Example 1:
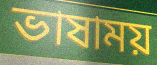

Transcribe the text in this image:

ভাষাময়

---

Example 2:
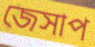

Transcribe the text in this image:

জেসাপ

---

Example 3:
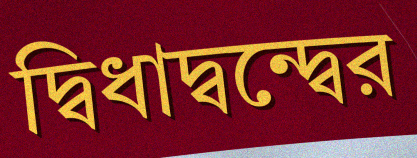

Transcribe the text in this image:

দ্বিধাদ্বন্দ্বের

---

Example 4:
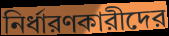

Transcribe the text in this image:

নির্ধারণকারীদের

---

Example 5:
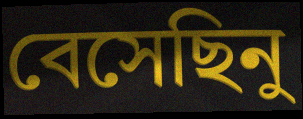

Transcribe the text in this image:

বেসেছিনু